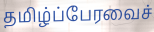
தமிழ்ப்பேரவைச்